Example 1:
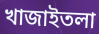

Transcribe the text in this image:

খাজাইতলা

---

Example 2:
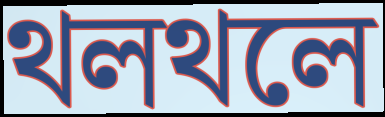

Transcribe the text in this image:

থলথলে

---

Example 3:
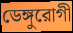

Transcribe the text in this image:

ডেঙ্গুরোগী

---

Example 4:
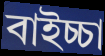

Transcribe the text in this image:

বাইচ্চা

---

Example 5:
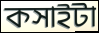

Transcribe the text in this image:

কসাইটা